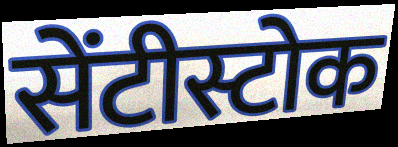
सेंटीस्टोक